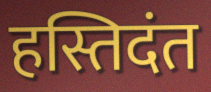
हस्तिदंत